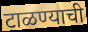
टाळण्याची